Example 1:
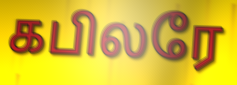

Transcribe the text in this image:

கபிலரே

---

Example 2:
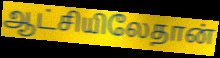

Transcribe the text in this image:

ஆட்சியிலேதான்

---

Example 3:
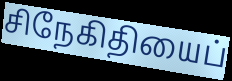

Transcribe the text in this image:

சிநேகிதியைப்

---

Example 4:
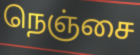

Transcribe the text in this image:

நெஞ்சை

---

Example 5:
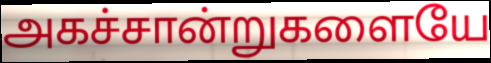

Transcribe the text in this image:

அகச்சான்றுகளையே